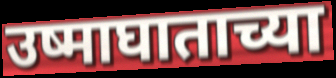
उष्माघाताच्या